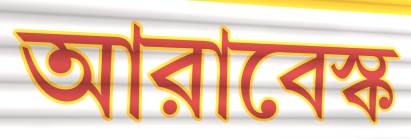
আরাবেস্ক